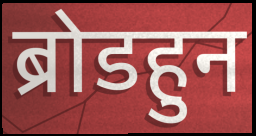
ब्रोडहुन